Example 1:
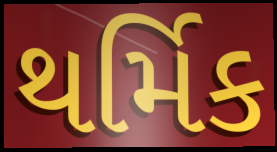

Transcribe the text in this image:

થર્મિક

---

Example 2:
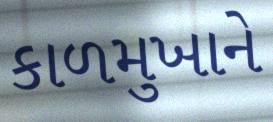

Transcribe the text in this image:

કાળમુખાને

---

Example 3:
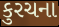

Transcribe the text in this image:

કુરચના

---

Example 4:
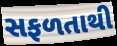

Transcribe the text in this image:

સફળતાથી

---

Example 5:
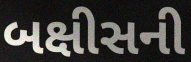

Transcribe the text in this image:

બક્ષીસની